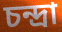
চন্দ্রা